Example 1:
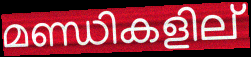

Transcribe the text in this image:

മണ്ഡികളില്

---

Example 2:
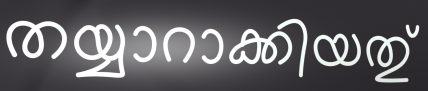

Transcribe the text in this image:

തയ്യാറാക്കിയതു്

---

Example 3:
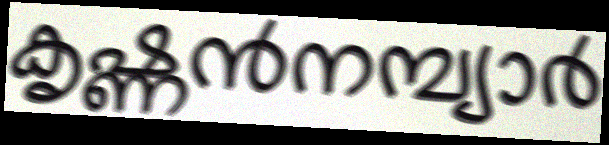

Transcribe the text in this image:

കൃഷ്ണൻനമ്പ്യാർ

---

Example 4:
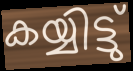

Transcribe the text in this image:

കയ്യിട്ടു്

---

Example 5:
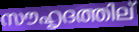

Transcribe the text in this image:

സൗഹൃദത്തില്